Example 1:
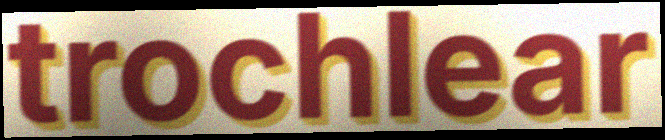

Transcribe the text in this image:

trochlear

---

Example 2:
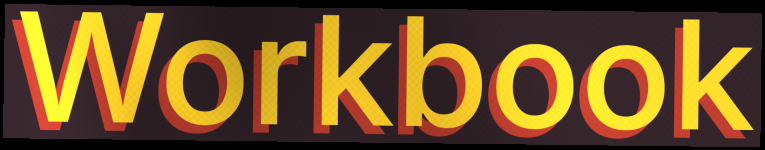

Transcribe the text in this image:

Workbook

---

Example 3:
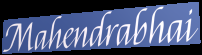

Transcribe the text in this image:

Mahendrabhai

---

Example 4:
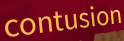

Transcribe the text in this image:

contusion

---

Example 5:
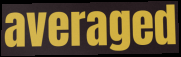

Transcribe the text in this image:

averaged